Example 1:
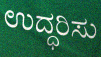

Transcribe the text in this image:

ಉದ್ಧರಿಸು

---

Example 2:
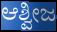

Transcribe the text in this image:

ಆಶ್ವೀಜ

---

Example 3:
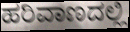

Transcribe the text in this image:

ಹರಿವಾಣದಲ್ಲಿ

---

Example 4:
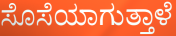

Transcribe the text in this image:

ಸೊಸೆಯಾಗುತ್ತಾಳೆ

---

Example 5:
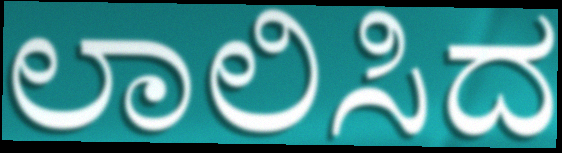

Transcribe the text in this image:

ಲಾಲಿಸಿದ